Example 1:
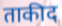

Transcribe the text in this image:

ताकीद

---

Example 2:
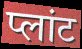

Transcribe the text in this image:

प्‍लांट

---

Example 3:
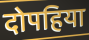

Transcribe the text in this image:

दोपहिया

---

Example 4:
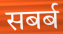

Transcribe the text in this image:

सबर्ब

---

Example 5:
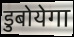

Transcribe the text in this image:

डुबोयेगा